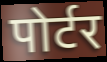
पोर्टर